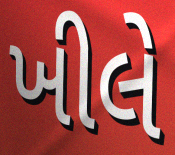
ખીલે